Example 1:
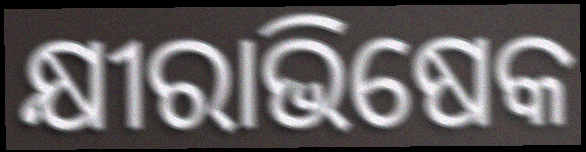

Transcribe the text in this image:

କ୍ଷୀରାଭିଷେକ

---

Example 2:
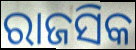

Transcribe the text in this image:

ରାଜସିକ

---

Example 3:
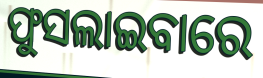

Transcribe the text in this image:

ଫୁସଲାଇବାରେ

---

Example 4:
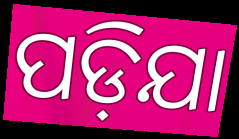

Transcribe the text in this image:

ପଡ଼ିଯା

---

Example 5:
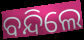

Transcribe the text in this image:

ବନ୍ଦିଲେ